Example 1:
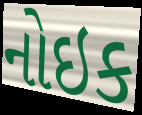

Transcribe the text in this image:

નોઇક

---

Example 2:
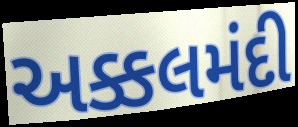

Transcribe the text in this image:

અક્કલમંદી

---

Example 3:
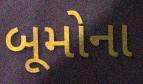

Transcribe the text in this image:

બૂમોના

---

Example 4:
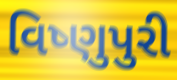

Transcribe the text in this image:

વિષ્ણુપુરી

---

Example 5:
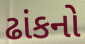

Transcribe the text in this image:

ઢાંકનો